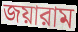
জয়ারাম